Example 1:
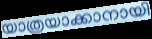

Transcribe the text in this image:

യാത്രയാക്കാനായി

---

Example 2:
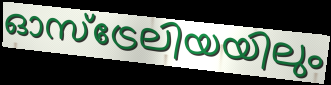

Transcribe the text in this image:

ഓസ്ട്രേലിയയിലും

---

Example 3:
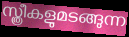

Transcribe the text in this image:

സ്ത്രീകളുമടങ്ങുന്ന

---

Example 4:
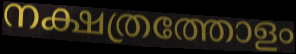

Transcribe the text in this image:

നക്ഷത്രത്തോളം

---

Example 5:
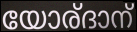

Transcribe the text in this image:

യോര്ദാന്